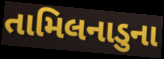
તામિલનાડુના